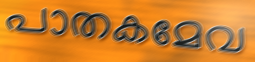
പാതകമേവ